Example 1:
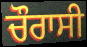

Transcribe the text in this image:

ਚੌਰਾਸੀ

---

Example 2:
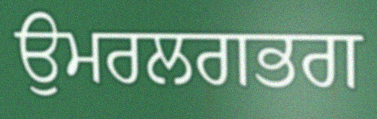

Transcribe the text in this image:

ਉੁਮਰਲਗਭਗ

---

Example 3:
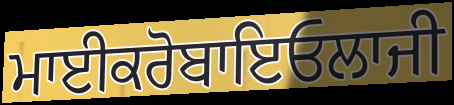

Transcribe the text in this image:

ਮਾਈਕਰੋਬਾਇਓਲਾਜੀ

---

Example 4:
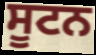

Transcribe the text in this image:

ਸੂਟਨ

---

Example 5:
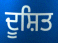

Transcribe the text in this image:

ਦੂਸ਼ਿਤ